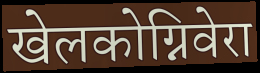
खेलकोग्निवेरा